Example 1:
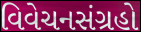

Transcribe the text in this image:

વિવેચનસંગ્રહો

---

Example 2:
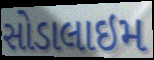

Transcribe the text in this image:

સોડાલાઇમ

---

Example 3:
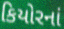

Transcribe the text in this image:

કિયોરનાં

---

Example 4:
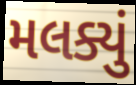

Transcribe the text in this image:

મલક્યું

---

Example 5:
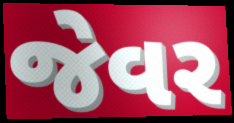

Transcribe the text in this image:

જેવર